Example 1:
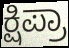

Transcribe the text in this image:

ಕ್ಷಿಪ್ರಾ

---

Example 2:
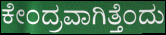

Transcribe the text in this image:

ಕೇಂದ್ರವಾಗಿತ್ತೆಂದು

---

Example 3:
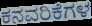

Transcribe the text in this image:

ಕನವರಿಕೆಗಳ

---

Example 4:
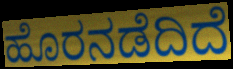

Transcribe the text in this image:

ಹೊರನಡೆದಿದೆ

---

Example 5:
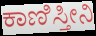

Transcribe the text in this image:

ಕಾಣಿಸ್ತೀನಿ